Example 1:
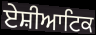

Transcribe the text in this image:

ਏਸ਼ੀਆਟਿਕ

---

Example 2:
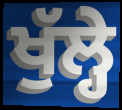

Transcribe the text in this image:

ਖੁੱਲ੍ਹੇ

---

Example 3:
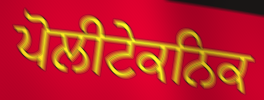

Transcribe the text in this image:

ਪੋਲੀਟੇਕਨਿਕ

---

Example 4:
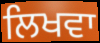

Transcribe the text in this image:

ਲਿਖਵਾ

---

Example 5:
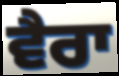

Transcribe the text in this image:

ਵੈਰਾ